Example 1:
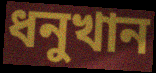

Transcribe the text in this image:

ধনুখান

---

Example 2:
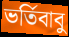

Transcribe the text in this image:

ভর্তিবাবু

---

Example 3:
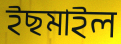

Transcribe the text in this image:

ইছমাইল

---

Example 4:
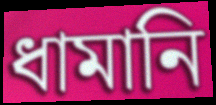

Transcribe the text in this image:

ধামানি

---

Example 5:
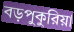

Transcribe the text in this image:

বড়পুকুরিয়া